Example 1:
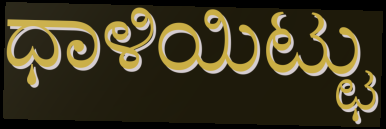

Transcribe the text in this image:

ಧಾಳಿಯಿಟ್ಟು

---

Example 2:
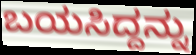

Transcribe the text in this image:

ಬಯಸಿದ್ದನ್ನು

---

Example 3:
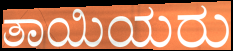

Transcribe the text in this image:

ತಾಯಿಯರು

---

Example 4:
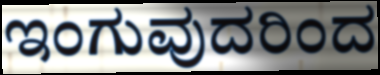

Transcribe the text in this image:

ಇಂಗುವುದರಿಂದ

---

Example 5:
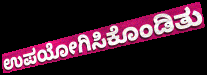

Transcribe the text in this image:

ಉಪಯೋಗಿಸಿಕೊಂಡಿತು